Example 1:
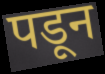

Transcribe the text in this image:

पडून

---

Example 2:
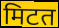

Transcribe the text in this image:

मिटत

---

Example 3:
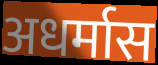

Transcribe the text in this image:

अधर्मास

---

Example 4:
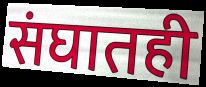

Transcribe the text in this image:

संघातही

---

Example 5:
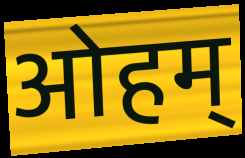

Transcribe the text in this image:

ओहम्